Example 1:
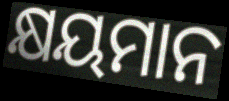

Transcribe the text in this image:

କ୍ଷୟମାନ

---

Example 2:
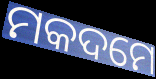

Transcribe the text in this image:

ମକଦମେ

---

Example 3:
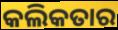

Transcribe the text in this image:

କଲିକତାର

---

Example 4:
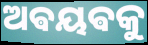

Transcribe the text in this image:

ଅଵୟଵକୁ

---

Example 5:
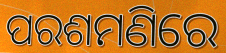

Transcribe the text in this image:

ପରଶମଣିରେ